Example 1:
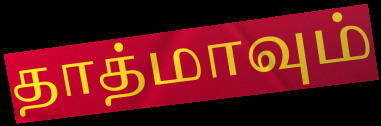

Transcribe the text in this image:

தாத்மாவும்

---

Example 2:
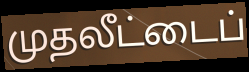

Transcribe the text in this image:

முதலீட்டைப்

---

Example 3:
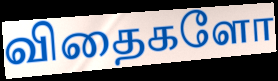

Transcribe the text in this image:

விதைகளோ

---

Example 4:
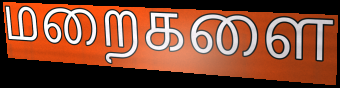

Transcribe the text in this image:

மறைகளை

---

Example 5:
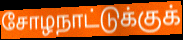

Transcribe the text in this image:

சோழநாட்டுக்குக்